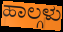
ಹಾಲ್ಗಳು